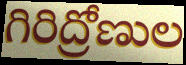
గిరిద్రోణుల